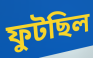
ফুটছিল